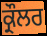
ਕ੍ਰੌਲਰ